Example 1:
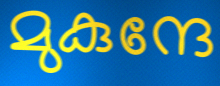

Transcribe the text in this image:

മുകുന്ദേ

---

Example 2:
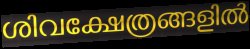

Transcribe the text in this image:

ശിവക്ഷേത്രങ്ങളിൽ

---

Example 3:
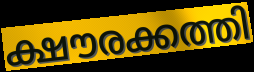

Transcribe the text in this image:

ക്ഷൗരക്കത്തി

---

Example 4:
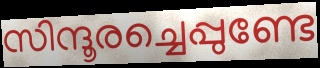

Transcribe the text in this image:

സിന്ദൂരച്ചെപ്പുണ്ടേ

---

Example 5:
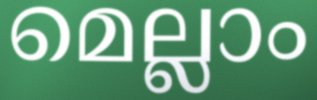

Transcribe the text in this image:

മെല്ലാം